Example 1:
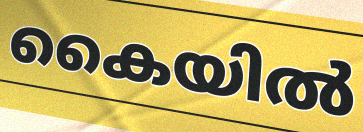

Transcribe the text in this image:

കൈയിൽ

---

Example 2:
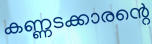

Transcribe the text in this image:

കണ്ണടക്കാരന്റെ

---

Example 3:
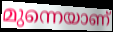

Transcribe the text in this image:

മുന്നെയാണ്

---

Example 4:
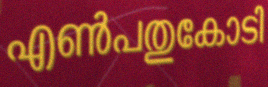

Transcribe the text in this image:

എൺപതുകോടി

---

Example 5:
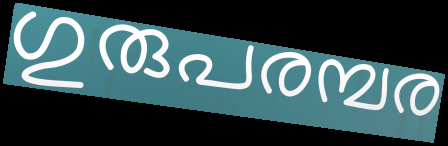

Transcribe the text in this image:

ഗുരുപരമ്പര